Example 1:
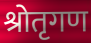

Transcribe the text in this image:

श्रोतृगण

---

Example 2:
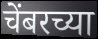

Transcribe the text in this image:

चेंबरच्या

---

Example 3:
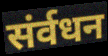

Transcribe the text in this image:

संर्वधन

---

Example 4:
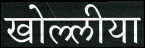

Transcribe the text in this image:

खोल्लीया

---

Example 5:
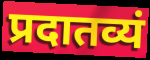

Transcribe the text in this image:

प्रदातव्यं